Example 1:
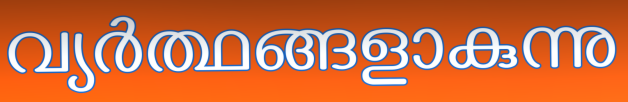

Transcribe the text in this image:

വ്യർത്ഥങ്ങളാകുന്നു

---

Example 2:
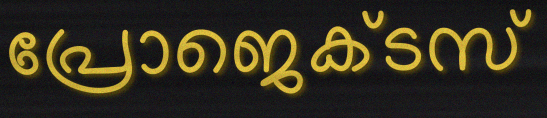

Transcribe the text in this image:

പ്രോജെക്ടസ്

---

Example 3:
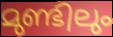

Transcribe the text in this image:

മുണ്ടിലും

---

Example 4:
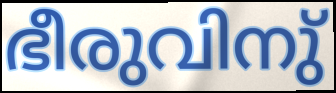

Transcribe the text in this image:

ഭീരുവിനു്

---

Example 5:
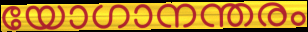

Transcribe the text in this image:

യോഗാനന്തരം